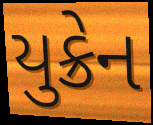
યુક્રેન